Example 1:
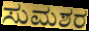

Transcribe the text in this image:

ಸುಮಶರ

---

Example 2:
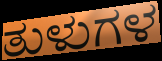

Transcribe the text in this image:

ತುಳುಗಳ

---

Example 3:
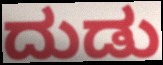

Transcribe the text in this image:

ದುಡು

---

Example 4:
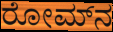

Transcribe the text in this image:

ರೋಮ್‍ನ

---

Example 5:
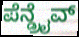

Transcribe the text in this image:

ಪೆನ್ಡ್ರೈವ್